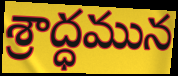
శ్రాద్ధమున